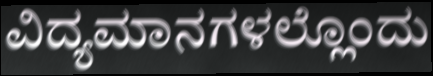
ವಿದ್ಯಮಾನಗಳಲ್ಲೊಂದು